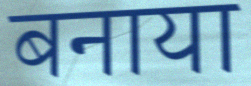
बनाया